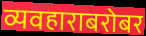
व्यवहाराबरोबर